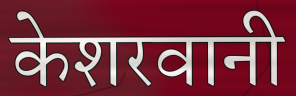
केशरवानी